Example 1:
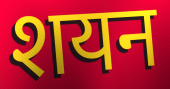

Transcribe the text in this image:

शयन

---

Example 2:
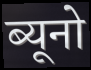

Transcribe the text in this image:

ब्यूनो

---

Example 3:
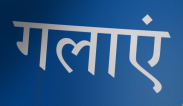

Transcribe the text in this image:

गलाएं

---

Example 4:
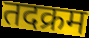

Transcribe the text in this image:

तदक्रम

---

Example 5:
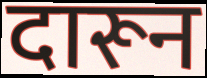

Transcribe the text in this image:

दारून